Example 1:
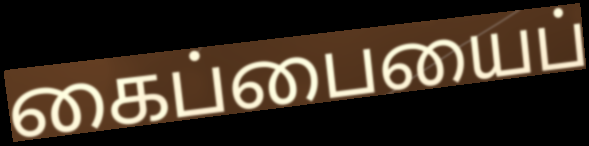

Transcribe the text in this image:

கைப்பையைப்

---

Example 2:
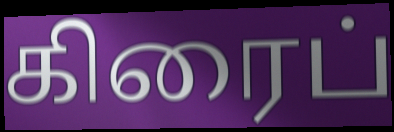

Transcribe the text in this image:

கிரைப்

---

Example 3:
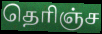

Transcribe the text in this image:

தெரிஞ்ச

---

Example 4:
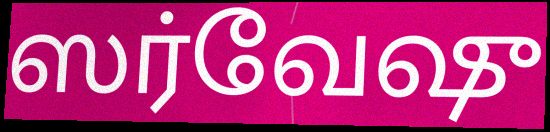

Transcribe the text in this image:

ஸர்வேஷு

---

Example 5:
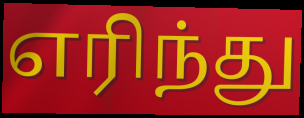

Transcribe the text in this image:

எரிந்து